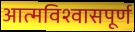
आत्मविश्वासपूर्ण